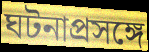
ঘটনাপ্রসঙ্গে